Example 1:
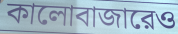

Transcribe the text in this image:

কালোবাজারেও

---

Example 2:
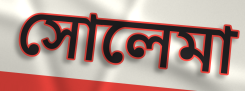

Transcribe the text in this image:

সোলেমা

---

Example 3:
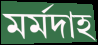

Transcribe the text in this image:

মর্মদাহ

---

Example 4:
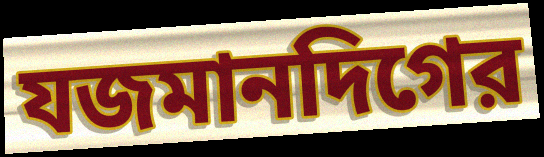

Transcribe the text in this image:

যজমানদিগের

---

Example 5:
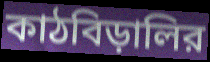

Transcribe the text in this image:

কাঠবিড়ালির